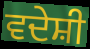
ਵਦੇਸ਼ੀ